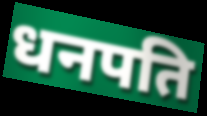
धनपति